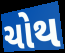
ચોથ